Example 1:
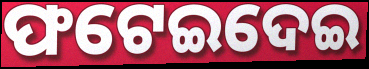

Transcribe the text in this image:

ଫଟେଇଦେଇ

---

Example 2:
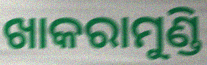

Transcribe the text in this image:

ଖାକରାମୁଣ୍ଡି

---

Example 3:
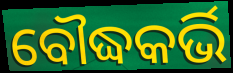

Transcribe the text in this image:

ବୌଦ୍ଧକର୍ଭି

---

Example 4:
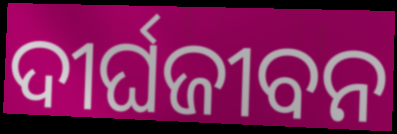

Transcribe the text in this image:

ଦୀର୍ଘଜୀବନ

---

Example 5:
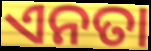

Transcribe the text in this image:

ଏନତା